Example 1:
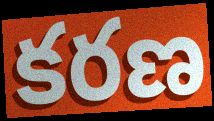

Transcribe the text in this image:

కరణ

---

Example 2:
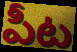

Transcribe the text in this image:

పీట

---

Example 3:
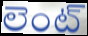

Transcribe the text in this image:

లెంట్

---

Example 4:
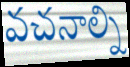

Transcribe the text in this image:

వచనాల్ని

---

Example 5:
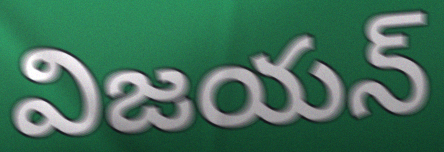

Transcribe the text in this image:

విజయన్